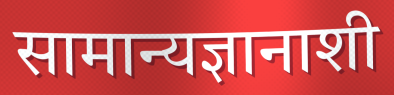
सामान्यज्ञानाशी